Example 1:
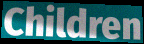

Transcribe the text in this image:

Children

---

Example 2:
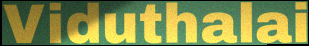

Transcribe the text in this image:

Viduthalai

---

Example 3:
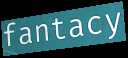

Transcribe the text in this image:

fantacy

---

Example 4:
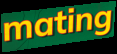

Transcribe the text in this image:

mating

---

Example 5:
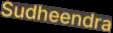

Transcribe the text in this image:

Sudheendra